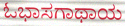
ಓಭಾಸಗಾಥಾಯ